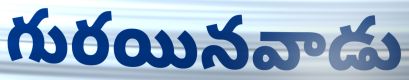
గురయినవాడు